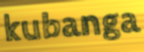
kubanga